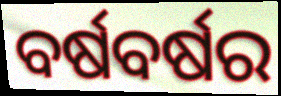
ବର୍ଷବର୍ଷର